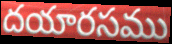
దయారసము